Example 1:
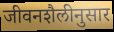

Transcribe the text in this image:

जीवनशैलीनुसार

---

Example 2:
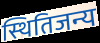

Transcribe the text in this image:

स्थितिजन्य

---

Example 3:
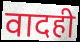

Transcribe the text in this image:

वादही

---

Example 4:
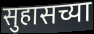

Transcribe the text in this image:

सुहासच्या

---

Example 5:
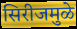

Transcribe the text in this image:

सिरीजमुळे